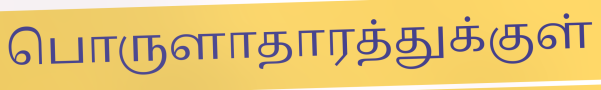
பொருளாதாரத்துக்குள்